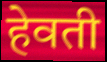
हेवती